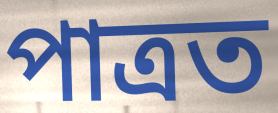
পাত্ৰত